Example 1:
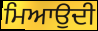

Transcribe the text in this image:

ਮਿਆਉਦੀ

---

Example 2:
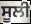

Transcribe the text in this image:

ਸੂਲੀ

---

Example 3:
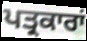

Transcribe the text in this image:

ਪਤ੍ਰਕਾਰਾਂ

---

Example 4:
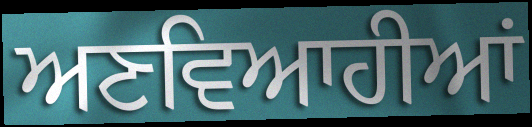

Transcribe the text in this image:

ਅਣਵਿਆਹੀਆਂ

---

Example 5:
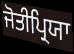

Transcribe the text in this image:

ਜੋਤੀਪ੍ਰਿਯਾ